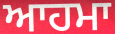
ਆਹਮਾ